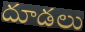
దూడలు